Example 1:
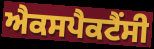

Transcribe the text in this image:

ਐਕਸਪੈਕਟੈਂਸੀ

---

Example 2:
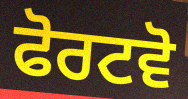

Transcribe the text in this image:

ਫੋਰਟਵੋ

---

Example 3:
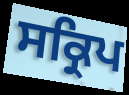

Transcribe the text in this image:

ਸਕ੍ਰਿਪ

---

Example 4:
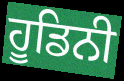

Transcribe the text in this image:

ਹੂਡਿਨੀ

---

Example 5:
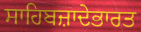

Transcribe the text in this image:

ਸਾਹਿਬਜ਼ਾਦੇਭਾਰਤ